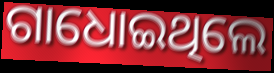
ଗାଧୋଇଥିଲେ